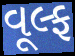
વૂલ્ફ